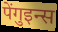
पेंगुइन्स